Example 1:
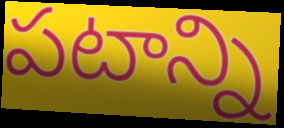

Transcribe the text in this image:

పటాన్ని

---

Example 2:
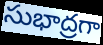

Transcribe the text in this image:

సుభాద్రగా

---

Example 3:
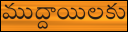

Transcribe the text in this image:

ముద్దాయిలకు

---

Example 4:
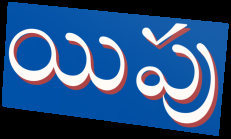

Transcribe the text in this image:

యిపు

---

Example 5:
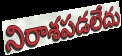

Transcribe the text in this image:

నిరాశపడలేదు